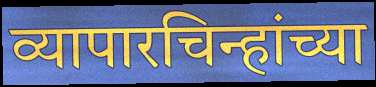
व्यापारचिन्हांच्या